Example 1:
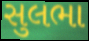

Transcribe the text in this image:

સુલભા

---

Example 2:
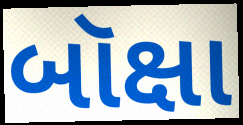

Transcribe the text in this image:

બૉક્ષા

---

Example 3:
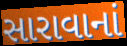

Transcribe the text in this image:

સારાવાનાં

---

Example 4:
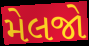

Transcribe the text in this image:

મેલજો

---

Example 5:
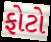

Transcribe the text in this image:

ફોટો